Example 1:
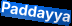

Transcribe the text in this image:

Paddayya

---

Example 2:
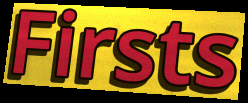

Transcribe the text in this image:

Firsts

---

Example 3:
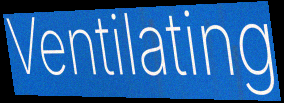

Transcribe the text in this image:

Ventilating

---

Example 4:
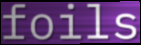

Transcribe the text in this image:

foils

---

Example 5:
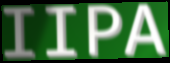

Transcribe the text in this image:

IIPA